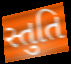
સ્તુતિ